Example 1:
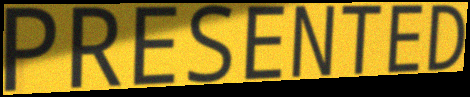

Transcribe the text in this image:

PRESENTED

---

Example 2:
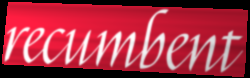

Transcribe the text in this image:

recumbent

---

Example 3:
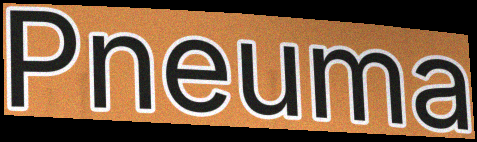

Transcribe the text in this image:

Pneuma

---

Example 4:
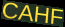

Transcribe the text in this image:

CAHF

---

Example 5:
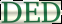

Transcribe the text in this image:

DED